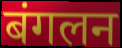
बंगलन